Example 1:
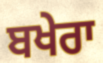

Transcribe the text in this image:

ਬਖੇਰਾ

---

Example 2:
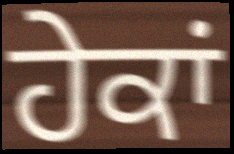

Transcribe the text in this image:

ਹੇਕਾਂ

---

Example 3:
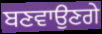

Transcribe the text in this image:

ਬਣਵਾਉਣਗੇ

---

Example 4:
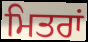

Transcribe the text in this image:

ਮਿਤਰਾਂ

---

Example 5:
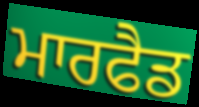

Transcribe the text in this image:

ਮਾਰਫੈਡ